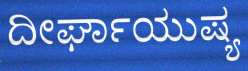
ದೀರ್ಘಾಯುಷ್ಯ